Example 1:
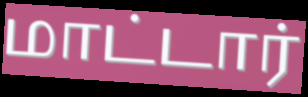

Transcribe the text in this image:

மாட்டார்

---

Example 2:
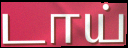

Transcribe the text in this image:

டாய்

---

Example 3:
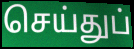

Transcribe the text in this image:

செய்துப்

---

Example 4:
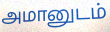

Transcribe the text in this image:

அமானுடம்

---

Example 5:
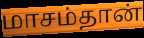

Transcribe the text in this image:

மாசம்தான்